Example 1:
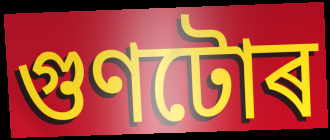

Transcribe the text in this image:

গুণটোৰ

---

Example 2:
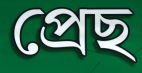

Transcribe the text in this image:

প্ৰেছ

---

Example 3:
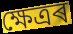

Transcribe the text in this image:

ক্ষেত্ৰৰ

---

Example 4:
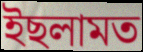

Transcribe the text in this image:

ইছলামত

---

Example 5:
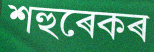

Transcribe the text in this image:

শহুৰেকৰ